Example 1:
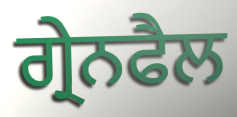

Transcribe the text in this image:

ਗ੍ਰੇਨਫੈਲ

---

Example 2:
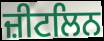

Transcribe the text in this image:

ਜ਼ੀਟਲਿਨ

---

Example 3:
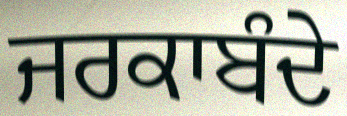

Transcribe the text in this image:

ਜਰਕਾਬੰਦੇ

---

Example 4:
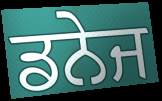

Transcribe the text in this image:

ਡਨੇਜ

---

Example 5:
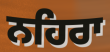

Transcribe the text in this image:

ਨਹਿਰਾ